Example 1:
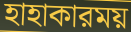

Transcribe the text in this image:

হাহাকারময়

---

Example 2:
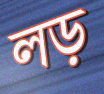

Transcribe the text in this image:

লড়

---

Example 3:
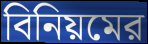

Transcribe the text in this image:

বিনিয়মের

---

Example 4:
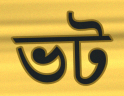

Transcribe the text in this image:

ভট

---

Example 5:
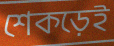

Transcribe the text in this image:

শেকড়েই